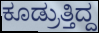
ಕೂಡ್ರುತ್ತಿದ್ದ